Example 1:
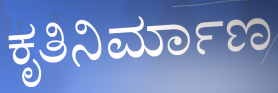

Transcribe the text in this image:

ಕೃತಿನಿರ್ಮಾಣ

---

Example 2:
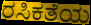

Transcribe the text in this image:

ರಸಿಕತೆಯ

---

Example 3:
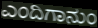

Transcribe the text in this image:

ಎಂದಿಗಾನುಂ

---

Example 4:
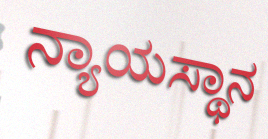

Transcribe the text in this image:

ನ್ಯಾಯಸ್ಥಾನ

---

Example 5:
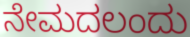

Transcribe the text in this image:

ನೇಮದಲಂದು